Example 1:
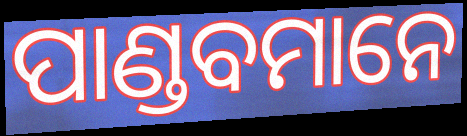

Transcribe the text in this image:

ପାଣ୍ଡବମାନେ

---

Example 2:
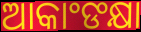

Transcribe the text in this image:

ଆକାଂଙକ୍ଷା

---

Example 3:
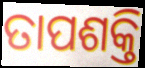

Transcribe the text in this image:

ତାପଶକ୍ତି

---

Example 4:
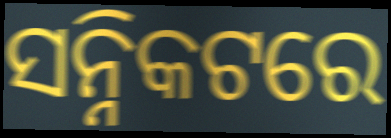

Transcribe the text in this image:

ସନ୍ନିକଟରେ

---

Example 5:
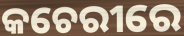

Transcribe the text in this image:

କଚେରୀରେ